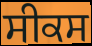
ਸੀਕਸ